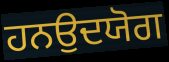
ਹਨਉਦਯੋਗ